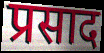
प्रसाद